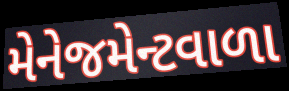
મેનેજમેન્ટવાળા